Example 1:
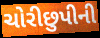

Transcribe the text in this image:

ચોરીછુપીની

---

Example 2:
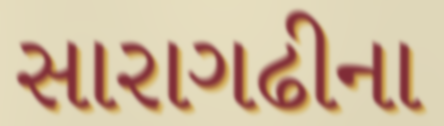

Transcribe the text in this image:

સારાગઢીના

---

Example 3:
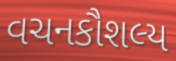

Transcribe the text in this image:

વચનકૌશલ્ય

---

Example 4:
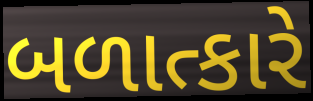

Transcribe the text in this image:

બળાત્કારે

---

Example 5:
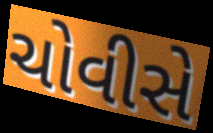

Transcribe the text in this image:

ચોવીસે